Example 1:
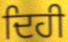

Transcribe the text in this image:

ਦਿਹੀ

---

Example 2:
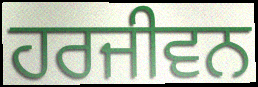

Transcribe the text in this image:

ਹਰਜੀਵਨ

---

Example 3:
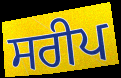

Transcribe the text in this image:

ਸਰੀਪ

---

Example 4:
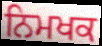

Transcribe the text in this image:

ਨਿਮਖਕ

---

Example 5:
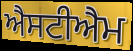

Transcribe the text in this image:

ਐਸਟੀਐਮ